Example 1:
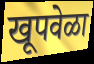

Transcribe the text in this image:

खूपवेळा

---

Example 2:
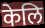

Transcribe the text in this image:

केलि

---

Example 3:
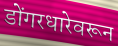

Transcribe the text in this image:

डोंगरधारेवरून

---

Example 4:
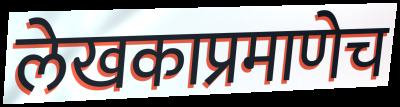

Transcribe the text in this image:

लेखकाप्रमाणेच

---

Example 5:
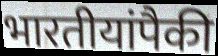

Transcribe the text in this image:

भारतीयांपैकी